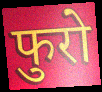
फुरो